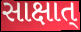
સાક્ષાત્